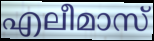
എലീമാസ്